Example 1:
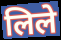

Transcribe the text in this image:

लिले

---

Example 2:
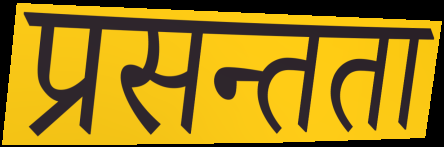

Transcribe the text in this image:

प्रसन्तता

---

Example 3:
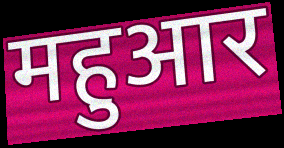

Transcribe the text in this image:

महुआर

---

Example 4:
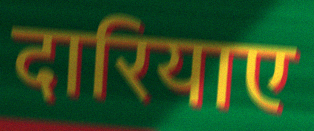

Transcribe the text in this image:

दारियाए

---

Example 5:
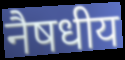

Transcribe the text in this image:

नैषधीय